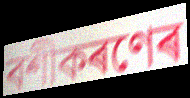
বশীকৰণেৰ